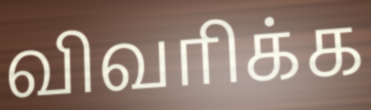
விவரிக்க